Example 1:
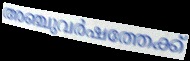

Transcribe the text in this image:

അഞ്ചുവർഷത്തേക്ക്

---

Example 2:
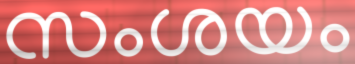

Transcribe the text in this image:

സംശയം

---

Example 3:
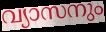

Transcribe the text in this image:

വ്യാസനും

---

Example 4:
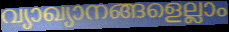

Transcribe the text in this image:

വ്യാഖ്യാനങ്ങളെല്ലാം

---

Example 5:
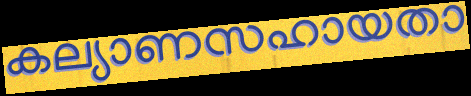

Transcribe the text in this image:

കല്യാണസഹായതാ